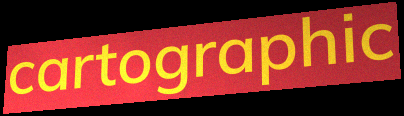
cartographic